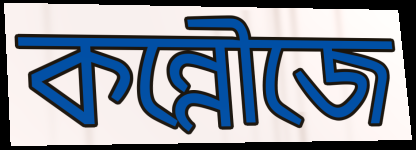
কন্নৌজে